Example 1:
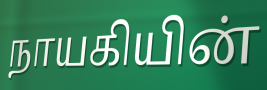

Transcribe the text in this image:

நாயகியின்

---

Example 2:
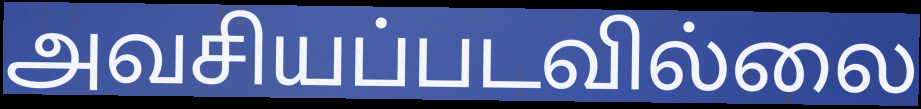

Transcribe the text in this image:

அவசியப்படவில்லை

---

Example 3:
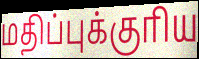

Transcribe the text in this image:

மதிப்புக்குரிய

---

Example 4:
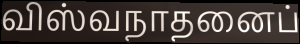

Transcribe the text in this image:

விஸ்வநாதனைப்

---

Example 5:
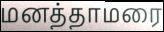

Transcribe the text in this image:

மனத்தாமரை